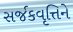
સર્જકવૃત્તિને